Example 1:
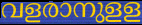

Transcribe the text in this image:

വളരാനുളള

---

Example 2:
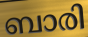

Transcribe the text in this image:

ബാരി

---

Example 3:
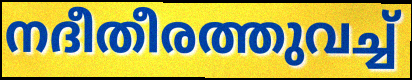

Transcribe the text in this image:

നദീതീരത്തുവച്ച്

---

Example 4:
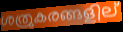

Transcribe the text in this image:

ശത്രുകരങ്ങളില്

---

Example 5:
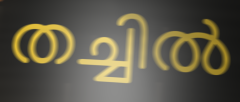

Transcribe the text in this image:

തച്ചിൽ